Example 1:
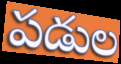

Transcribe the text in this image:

పడుల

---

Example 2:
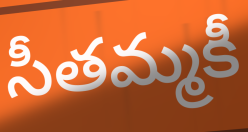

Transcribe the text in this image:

సీతమ్మకీ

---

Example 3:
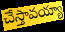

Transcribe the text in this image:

చేస్తావయ్యా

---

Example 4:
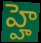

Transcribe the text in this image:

హ్హె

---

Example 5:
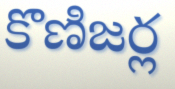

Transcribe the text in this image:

కొణిజర్ల